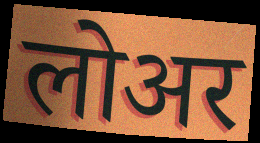
लोअर